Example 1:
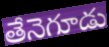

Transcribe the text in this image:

తేనెగూడు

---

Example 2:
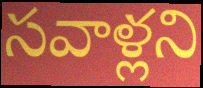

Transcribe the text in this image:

సవాళ్లని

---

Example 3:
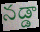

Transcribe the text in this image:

నడ్డా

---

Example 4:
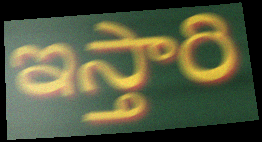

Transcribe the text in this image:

ఇస్తారి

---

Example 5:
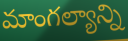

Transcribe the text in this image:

మాంగల్యాన్ని